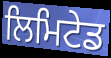
ਲਿਮਿਟੇਡ